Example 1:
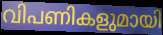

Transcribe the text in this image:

വിപണികളുമായി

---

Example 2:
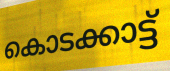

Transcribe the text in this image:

കൊടക്കാട്ട്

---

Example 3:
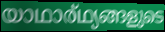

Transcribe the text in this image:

യാഥാര്ഥ്യങ്ങളുടെ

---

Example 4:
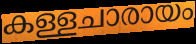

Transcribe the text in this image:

കള്ളചാരായം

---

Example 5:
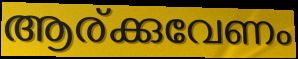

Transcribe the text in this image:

ആര്ക്കുവേണം